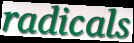
radicals